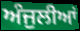
ਅੰਜੁਲੀਆਂ